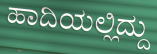
ಹಾದಿಯಲ್ಲಿದ್ದು